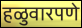
हळुवारपणे